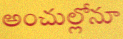
అంచుల్లోనూ